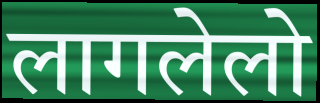
लागलेलो